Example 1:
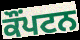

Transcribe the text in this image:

ਕੌਂਪਟਨ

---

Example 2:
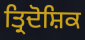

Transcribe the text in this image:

ਤ੍ਰਿਦੋਸ਼ਿਕ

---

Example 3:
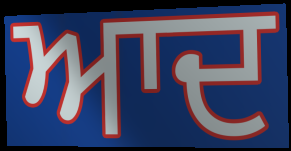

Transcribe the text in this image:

ਆਦ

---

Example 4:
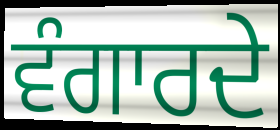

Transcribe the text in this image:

ਵੰਗਾਰਦੇ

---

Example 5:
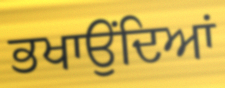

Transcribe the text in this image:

ਭਖਾਉਂਦਿਆਂ